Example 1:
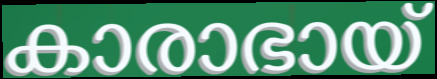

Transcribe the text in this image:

കാരാഭായ്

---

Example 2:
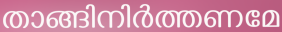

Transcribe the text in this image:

താങ്ങിനിർത്തണമേ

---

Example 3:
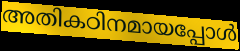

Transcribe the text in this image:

അതികഠിനമായപ്പോൾ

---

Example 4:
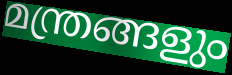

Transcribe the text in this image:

മന്ത്രങ്ങളും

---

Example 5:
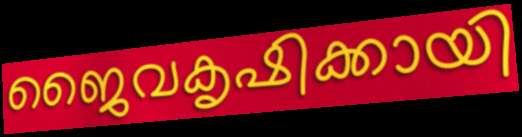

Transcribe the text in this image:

ജൈവകൃഷിക്കായി